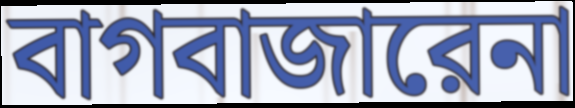
বাগবাজারেনা